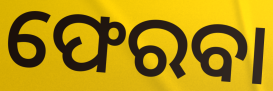
ଫେରବା